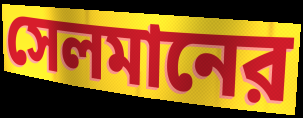
সেলমানের